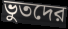
ভুতদের